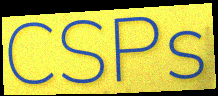
CSPs